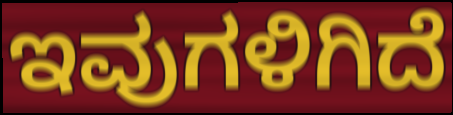
ಇವುಗಳಿಗಿದೆ